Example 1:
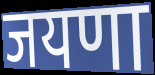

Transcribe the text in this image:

जयणा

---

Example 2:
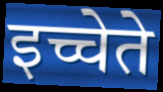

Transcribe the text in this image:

इच्चेते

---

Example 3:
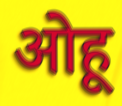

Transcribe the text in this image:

ओहू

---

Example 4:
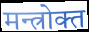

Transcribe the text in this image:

मन्त्रोक्त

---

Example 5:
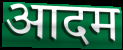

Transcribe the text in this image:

आदम